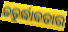
ଚତୁର୍ଦ୍ଧାବତାର